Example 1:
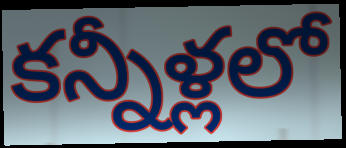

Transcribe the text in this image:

కన్నీళ్లలో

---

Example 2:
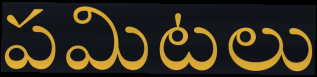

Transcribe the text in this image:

పమిటలు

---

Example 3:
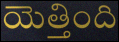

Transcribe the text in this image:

యెత్తింది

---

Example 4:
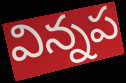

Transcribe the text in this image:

విన్నప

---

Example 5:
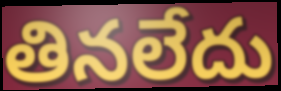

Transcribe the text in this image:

తినలేదు